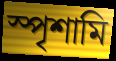
স্পৃশামি